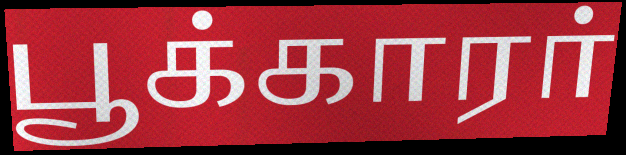
பூக்காரர்